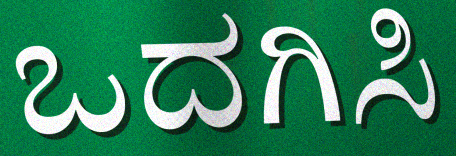
ಒದಗಿಸಿ